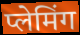
प्लेमिंग